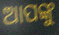
ଆପଙ୍କୁ